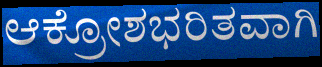
ಆಕ್ರೋಶಭರಿತವಾಗಿ